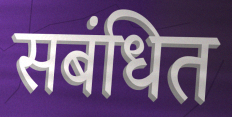
सबंधित